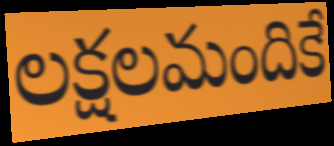
లక్షలమందికే